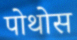
पोथोस